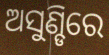
ଅସୁଣ୍ଡିରେ